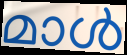
മാൾ